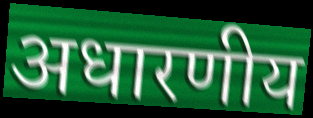
अधारणीय